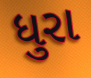
ધુરા